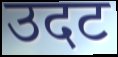
उदट